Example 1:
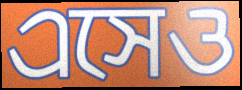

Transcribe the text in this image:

এসেও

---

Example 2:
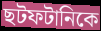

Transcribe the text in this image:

ছটফটানিকে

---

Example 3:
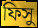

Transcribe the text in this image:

ফিসু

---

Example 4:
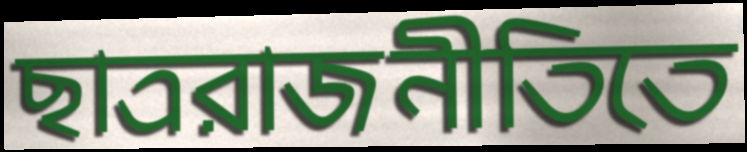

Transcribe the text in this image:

ছাত্ররাজনীতিতে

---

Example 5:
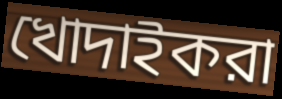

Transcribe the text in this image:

খোদাইকরা